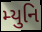
મ્યુનિ